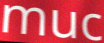
muc